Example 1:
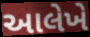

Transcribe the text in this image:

આલેખે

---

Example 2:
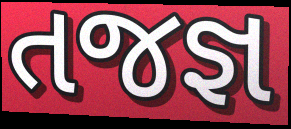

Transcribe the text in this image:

તજજ્ઞ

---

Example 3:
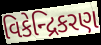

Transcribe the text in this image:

વિકેન્દ્રિકરણ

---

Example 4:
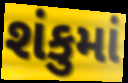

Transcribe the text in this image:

શંકુમાં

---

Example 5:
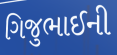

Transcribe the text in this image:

ગિજુભાઈની